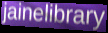
jainelibrary